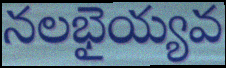
నలభైయ్యవ